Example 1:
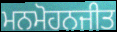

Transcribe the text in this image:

ਮਨਮੋਹਨਜੀਤ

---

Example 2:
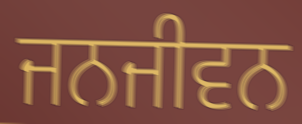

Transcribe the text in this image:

ਜਨਜੀਵਨ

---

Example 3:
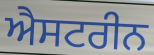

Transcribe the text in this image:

ਐਸਟਰੀਨ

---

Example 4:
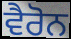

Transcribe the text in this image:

ਵੈਰੋਨ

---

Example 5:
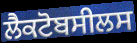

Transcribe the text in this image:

ਲੈਕਟੋਬਸੀਲਸ